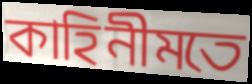
কাহিনীমতে